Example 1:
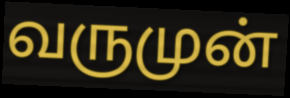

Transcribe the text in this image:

வருமுன்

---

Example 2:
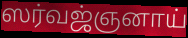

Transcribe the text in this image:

ஸர்வஜ்ஞனாய்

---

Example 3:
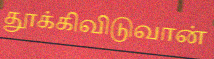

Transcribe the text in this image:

தூக்கிவிடுவான்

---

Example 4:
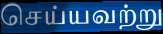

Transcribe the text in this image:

செய்யவற்று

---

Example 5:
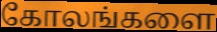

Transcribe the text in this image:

கோலங்களை